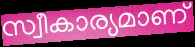
സ്വീകാര്യമാണ്